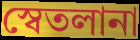
স্বেতলানা